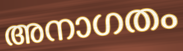
അനാഗതം